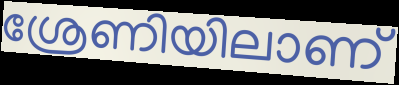
ശ്രേണിയിലാണ്